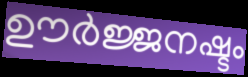
ഊർജ്ജനഷ്ടം